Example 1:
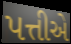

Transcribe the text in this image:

પત્તીએ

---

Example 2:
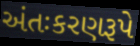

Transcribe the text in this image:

અંતઃકરણરૂપે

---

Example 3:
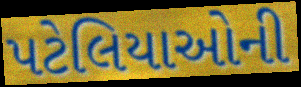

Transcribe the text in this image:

પટેલિયાઓની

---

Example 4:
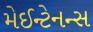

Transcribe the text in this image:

મેઈન્ટેનન્સ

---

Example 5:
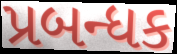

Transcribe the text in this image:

પ્રબન્ધક